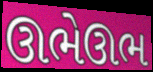
ઊભેઊભ